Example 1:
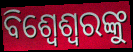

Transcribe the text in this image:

ବିଶ୍ୱେଶ୍ୱରଙ୍କୁ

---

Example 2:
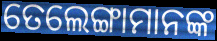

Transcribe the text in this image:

ତେଲେଙ୍ଗାମାନଙ୍କ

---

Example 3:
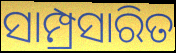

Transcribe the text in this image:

ସାମ୍ପ୍ରସାରିତ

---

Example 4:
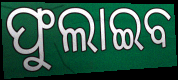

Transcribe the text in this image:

ଫୁଲାଇବ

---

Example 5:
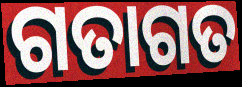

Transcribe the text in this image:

ଗତାଗତ